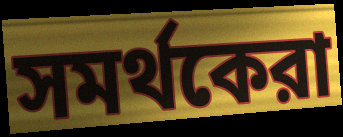
সমর্থকেরা